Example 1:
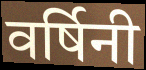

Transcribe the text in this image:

वर्षिनी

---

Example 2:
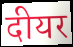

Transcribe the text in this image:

दीयर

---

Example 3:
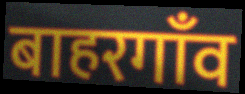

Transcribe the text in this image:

बाहरगाँव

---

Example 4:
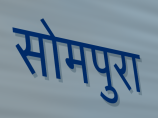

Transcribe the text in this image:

सोमपुरा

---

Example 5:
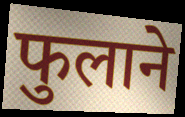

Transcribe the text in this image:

फुलाने